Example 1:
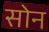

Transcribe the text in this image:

सोन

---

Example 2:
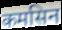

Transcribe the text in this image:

कमसिन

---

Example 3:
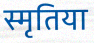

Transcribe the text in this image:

स्मृतिया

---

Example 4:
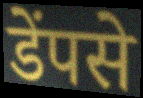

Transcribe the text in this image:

डेंपसे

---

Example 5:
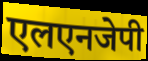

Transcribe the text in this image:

एलएनजेपी